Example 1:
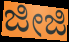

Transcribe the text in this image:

ಜೀಜಿ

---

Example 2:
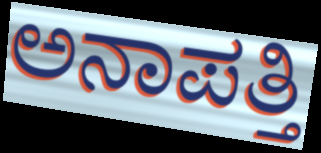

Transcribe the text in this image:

ಅನಾಪತ್ತಿ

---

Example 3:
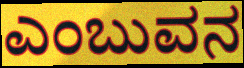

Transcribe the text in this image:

ಎಂಬುವನ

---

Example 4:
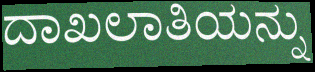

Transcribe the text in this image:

ದಾಖಲಾತಿಯನ್ನು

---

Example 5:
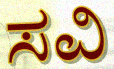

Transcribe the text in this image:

ಸವಿ